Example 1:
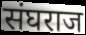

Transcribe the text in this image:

संघराज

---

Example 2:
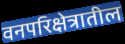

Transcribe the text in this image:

वनपरिक्षेत्रातील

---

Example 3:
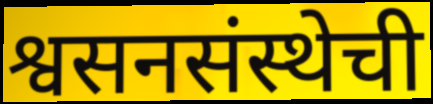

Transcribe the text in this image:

श्वसनसंस्थेची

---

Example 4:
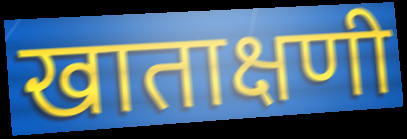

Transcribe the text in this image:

खाताक्षणी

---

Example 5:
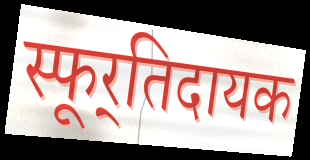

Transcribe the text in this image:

स्फूर्तिदायक